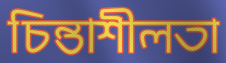
চিন্তাশীলতা